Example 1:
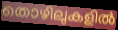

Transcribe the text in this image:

തൊഴിലുകളിൽ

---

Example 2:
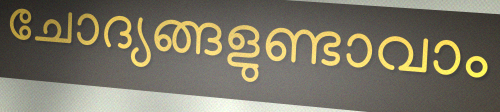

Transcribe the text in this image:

ചോദ്യങ്ങളുണ്ടാവാം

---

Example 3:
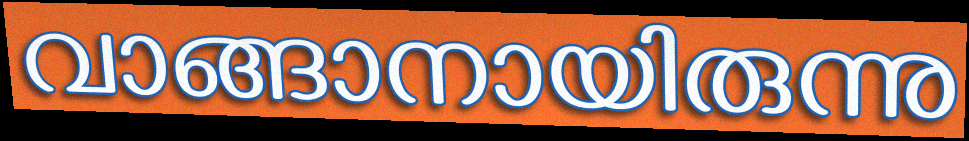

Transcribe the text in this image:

വാങ്ങാനായിരുന്നു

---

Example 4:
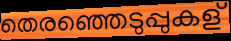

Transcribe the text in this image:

തെരഞ്ഞെടുപ്പുകള്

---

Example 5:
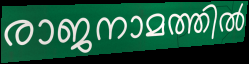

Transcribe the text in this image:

രാജനാമത്തിൽ